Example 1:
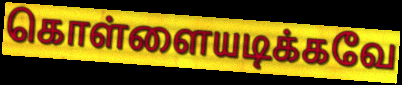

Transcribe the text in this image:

கொள்ளையடிக்கவே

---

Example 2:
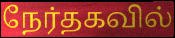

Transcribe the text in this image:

நேர்தகவில்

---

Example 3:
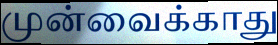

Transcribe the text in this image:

முன்வைக்காது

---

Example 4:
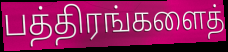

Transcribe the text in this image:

பத்திரங்களைத்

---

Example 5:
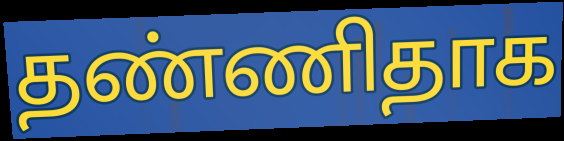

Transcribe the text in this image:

தண்ணிதாக